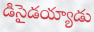
డిసైడయ్యాడు